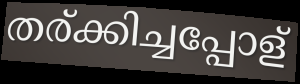
തര്ക്കിച്ചപ്പോള്